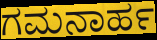
ಗಮನಾರ್ಹ